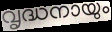
വൃദ്ധനായും